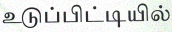
உடுப்பிட்டியில்